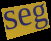
seg